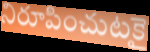
నిరూపించుటకై